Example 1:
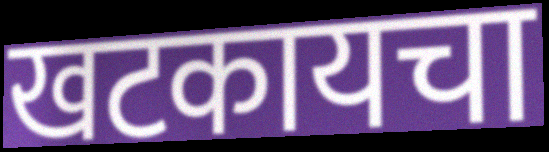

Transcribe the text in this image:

खटकायचा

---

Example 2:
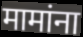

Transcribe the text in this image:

मामांना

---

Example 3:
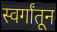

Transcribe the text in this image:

स्वर्गांतून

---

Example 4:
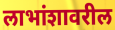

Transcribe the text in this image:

लाभांशावरील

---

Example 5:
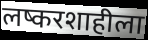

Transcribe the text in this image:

लष्करशाहीला